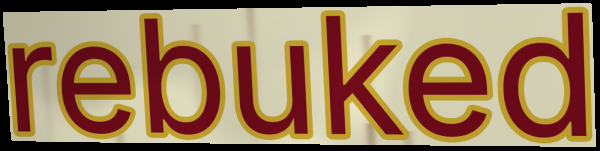
rebuked